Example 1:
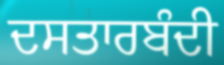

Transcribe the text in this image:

ਦਸਤਾਰਬੰਦੀ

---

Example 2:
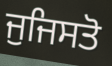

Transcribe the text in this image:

ਜੁਜਿਸਤੋ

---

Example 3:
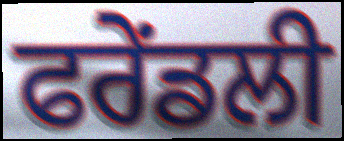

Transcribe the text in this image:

ਫਰੇਂਡਲੀ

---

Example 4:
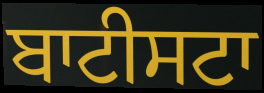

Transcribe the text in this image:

ਬਾਟੀਸਟਾ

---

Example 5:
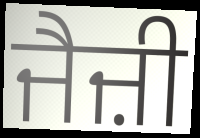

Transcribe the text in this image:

ਜੈਜ਼ੀ